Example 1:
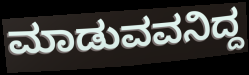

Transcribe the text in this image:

ಮಾಡುವವನಿದ್ದ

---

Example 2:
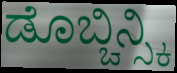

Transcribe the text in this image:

ಡೊಬ್ಚಿನ್ಸ್ಕಿ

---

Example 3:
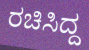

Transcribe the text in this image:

ರಚಿಸಿದ್ದ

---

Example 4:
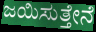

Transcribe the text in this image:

ಜಯಿಸುತ್ತೇನೆ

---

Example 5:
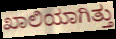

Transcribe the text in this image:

ಖಾಲಿಯಾಗಿತ್ತು